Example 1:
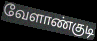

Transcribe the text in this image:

வேளாண்குடி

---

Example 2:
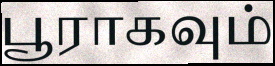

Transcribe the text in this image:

பூராகவும்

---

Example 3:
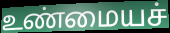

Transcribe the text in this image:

உண்மையச்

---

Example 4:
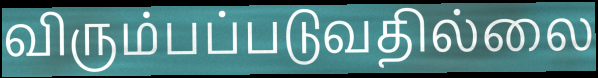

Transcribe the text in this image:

விரும்பப்படுவதில்லை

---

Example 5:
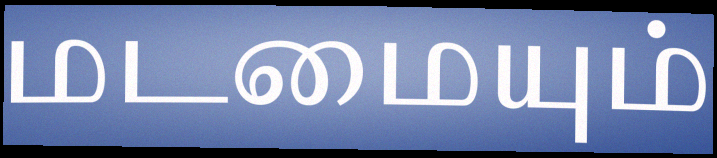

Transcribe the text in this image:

மடமையும்